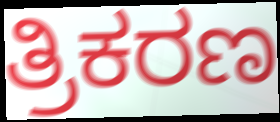
ತ್ರಿಕರಣ